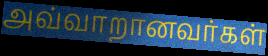
அவ்வாறானவர்கள்